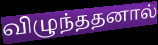
விழுந்ததனால்